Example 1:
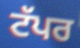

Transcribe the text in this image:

ਟੱਪਰ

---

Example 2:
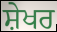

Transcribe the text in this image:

ਸ਼ੇਖਰ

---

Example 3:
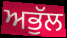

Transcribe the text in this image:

ਅਭੁੱਲ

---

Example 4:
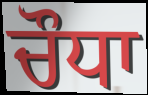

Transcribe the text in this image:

ਚੌਧਾ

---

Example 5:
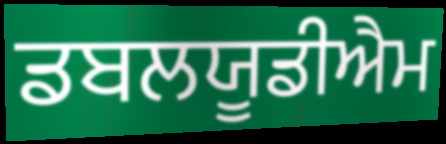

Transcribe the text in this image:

ਡਬਲਯੂਡੀਐਮ